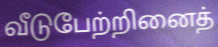
வீடுபேற்றினைத்